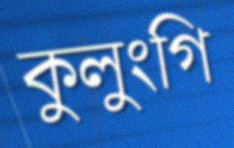
কুলুংগি